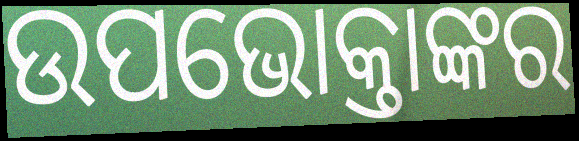
ଉପଭୋକ୍ତାଙ୍କର